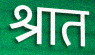
श्रात